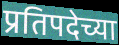
प्रतिपदेच्या